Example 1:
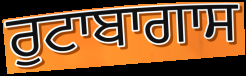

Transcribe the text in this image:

ਰੁਟਾਬਾਗਾਸ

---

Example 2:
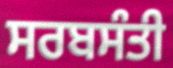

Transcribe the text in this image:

ਸਰਬਸੰਤੀ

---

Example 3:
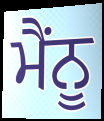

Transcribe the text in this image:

ਮੈਂਨੂ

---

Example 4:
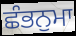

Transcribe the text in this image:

ਛੰਭਨੁਮਾ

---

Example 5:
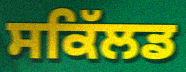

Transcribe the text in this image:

ਸਕਿੱਲਡ